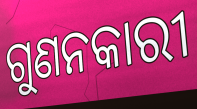
ଗୁଣନକାରୀ